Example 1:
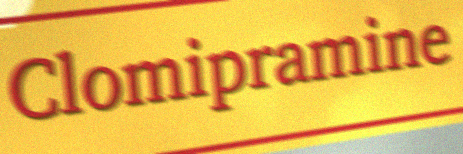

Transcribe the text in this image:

Clomipramine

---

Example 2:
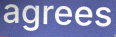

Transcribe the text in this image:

agrees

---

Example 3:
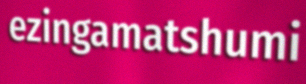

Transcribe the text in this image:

ezingamatshumi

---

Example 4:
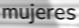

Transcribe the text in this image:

mujeres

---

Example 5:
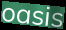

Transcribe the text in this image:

oasis